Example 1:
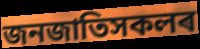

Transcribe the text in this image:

জনজাতিসকলৰ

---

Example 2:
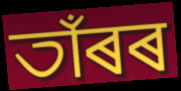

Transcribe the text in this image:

তাঁৰৰ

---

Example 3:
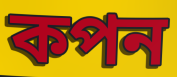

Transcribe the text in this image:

কপন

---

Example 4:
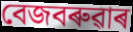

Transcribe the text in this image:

বেজবৰুৱাৰ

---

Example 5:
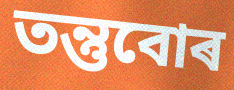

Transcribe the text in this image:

তন্তুবোৰ